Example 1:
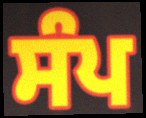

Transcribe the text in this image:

ਸੰਪ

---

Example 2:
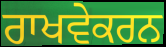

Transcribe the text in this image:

ਰਾਖਵੇਕਰਨ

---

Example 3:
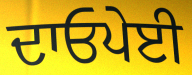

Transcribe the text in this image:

ਦਾਓਪੇਈ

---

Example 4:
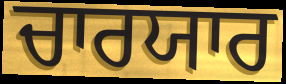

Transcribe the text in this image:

ਚਾਰਯਾਰ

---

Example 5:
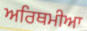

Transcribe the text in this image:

ਅਰਿਥਮੀਆ